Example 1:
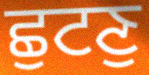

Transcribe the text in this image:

ਛੁਟਣੁ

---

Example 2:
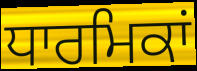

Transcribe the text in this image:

ਧਾਰਮਿਕਾਂ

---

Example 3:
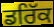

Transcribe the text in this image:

ਡਰਿੱਕ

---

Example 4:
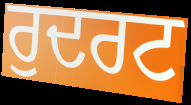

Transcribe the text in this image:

ਰੁਦਰਟ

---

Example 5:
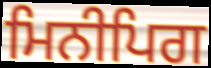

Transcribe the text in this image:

ਮਿਨੀਪਿਗ